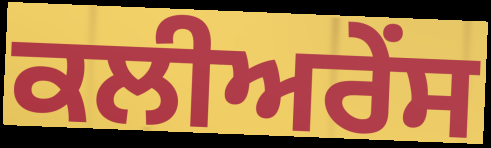
ਕਲੀਅਰੇਂਸ